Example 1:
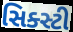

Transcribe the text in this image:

સિક્સ્ટી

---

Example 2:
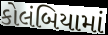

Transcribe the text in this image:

કોલંબિયામાં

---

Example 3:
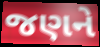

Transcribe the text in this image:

જણને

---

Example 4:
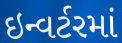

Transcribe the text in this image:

ઇન્વર્ટરમાં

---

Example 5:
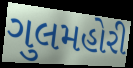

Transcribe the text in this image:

ગુલમહોરી